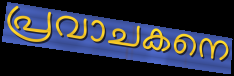
പ്രവാചകനെ